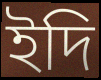
ইদি